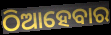
ଠିଆହେବାର